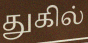
துகில்